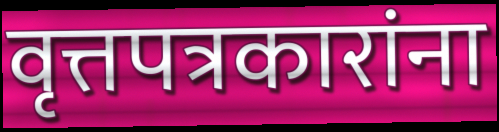
वृत्तपत्रकारांना